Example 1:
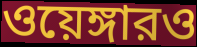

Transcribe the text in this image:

ওয়েঙ্গারও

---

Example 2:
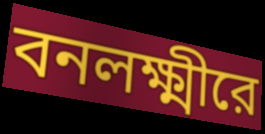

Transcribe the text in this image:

বনলক্ষ্মীরে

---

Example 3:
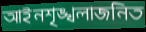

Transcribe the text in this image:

আইনশৃঙ্খলাজনিত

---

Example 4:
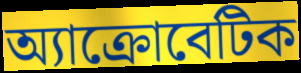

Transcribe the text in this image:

অ্যাক্রোবেটিক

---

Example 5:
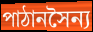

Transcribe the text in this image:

পাঠানসৈন্য